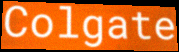
Colgate